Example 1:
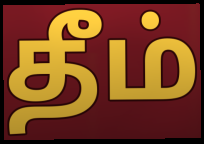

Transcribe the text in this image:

தீம்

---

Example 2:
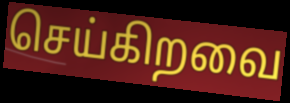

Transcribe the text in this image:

செய்கிறவை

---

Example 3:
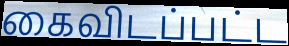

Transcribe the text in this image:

கைவிடப்பட்ட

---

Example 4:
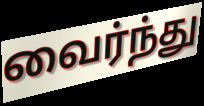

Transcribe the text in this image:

வைர்ந்து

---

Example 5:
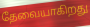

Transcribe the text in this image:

தேவையாகிறது